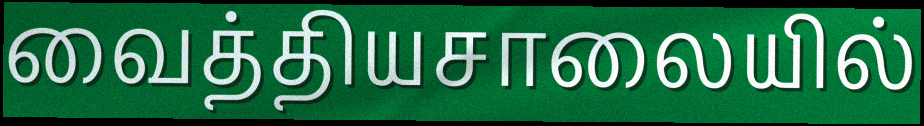
வைத்தியசாலையில்